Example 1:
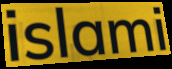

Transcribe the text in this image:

islami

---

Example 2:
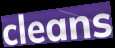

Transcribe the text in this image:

cleans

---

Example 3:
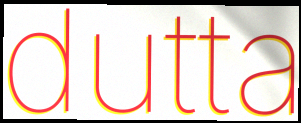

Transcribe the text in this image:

dutta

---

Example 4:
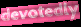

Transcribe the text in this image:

devotedly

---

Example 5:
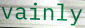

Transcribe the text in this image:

vainly